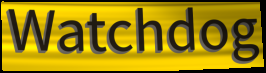
Watchdog